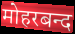
मोहरबन्द